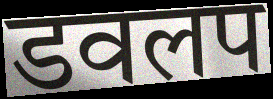
डवलप